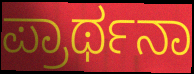
ಪ್ರಾರ್ಥನಾ